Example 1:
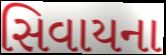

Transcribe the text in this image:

સિવાયના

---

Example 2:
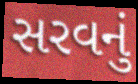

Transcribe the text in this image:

સરવનું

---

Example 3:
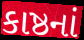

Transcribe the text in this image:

કાષ્ઠનાં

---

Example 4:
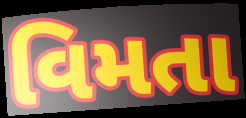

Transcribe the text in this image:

વિમતા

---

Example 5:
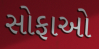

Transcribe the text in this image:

સોફાઓ